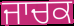
ਜਾਚਕ